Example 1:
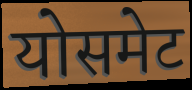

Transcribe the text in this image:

योसमेट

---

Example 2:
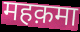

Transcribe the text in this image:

महक़मा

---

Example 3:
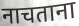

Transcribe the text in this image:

नाचताना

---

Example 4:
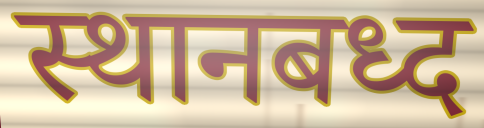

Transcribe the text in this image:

स्थानबध्द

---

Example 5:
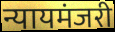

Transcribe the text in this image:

न्यायमंजरी